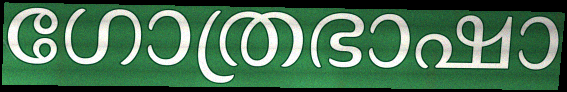
ഗോത്രഭാഷാ